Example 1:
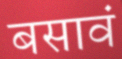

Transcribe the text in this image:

बसावं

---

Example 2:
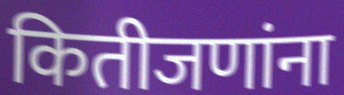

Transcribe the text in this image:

कितीजणांना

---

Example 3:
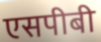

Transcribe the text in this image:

एसपीबी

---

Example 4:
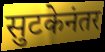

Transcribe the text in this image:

सुटकेनंतर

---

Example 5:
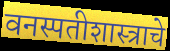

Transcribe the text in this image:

वनस्पतीशास्त्राचे